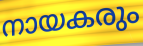
നായകരും